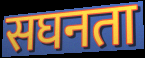
सघनता